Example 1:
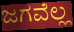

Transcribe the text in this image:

ಜಗವೆಲ್ಲ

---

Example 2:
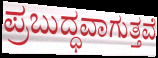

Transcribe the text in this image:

ಪ್ರಬುದ್ಧವಾಗುತ್ತವೆ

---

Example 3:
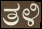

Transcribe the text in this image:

ತಳಿ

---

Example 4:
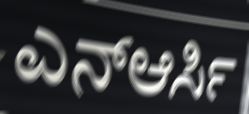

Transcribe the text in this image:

ಎನ್ಆರ್ಸಿ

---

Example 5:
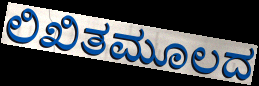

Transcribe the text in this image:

ಲಿಖಿತಮೂಲದ